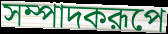
সম্পাদকরূপে